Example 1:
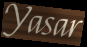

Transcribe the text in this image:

Yasar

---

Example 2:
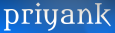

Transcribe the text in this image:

priyank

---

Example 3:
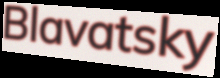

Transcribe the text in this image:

Blavatsky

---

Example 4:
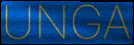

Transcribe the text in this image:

UNGA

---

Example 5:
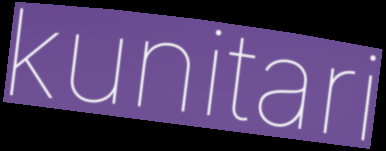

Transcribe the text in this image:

kunitari